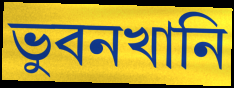
ভুবনখানি